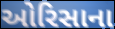
ઓરિસાના